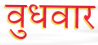
वुधवार